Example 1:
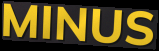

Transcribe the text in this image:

MINUS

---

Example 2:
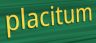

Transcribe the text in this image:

placitum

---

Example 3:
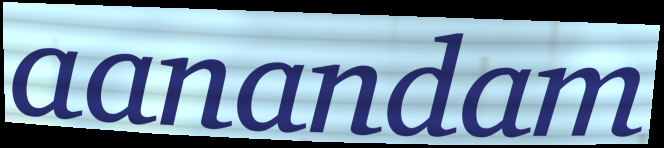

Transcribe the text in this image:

aanandam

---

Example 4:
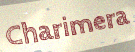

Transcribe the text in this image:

Charimera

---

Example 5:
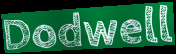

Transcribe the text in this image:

Dodwell